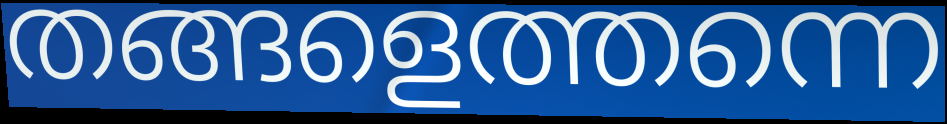
തങ്ങളെത്തന്നെ